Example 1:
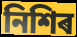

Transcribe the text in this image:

নিশিৰ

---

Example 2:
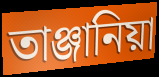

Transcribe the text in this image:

তাঞ্জানিয়া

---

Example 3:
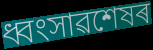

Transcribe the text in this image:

ধ্বংসাৱশেষৰ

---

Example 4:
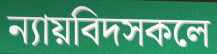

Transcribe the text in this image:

ন্যায়বিদসকলে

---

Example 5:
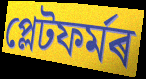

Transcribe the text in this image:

প্লেটফৰ্মৰ